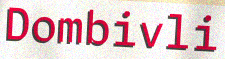
Dombivli